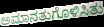
ಅಮಾನತುಗೊಳಿಸಿತು